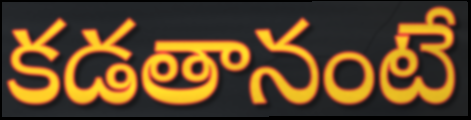
కడతానంటే